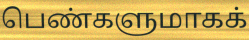
பெண்களுமாகக்